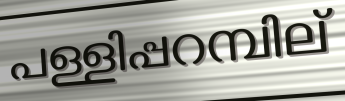
പള്ളിപ്പറമ്പില്